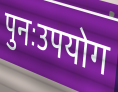
पुनःउपयोग